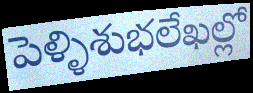
పెళ్ళిశుభలేఖల్లో